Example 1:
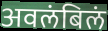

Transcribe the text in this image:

अवलंबिलं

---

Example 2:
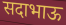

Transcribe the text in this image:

सदाभाऊ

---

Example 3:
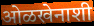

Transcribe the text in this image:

ओळखेनाशी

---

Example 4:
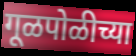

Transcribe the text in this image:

गूळपोळीच्या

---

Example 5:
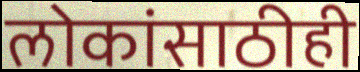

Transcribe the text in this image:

लोकांसाठीही